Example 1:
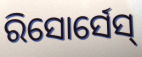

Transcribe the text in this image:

ରିସୋର୍ସେସ୍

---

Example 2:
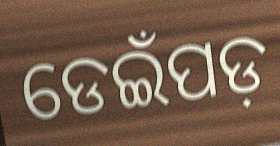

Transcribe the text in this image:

ଡେଇଁପଡ଼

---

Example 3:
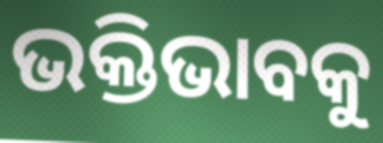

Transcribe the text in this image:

ଭକ୍ତିଭାବକୁ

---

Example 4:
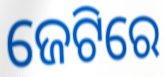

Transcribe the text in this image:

ଜେଟିରେ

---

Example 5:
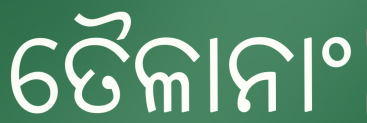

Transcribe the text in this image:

ତୈଳାନାଂ